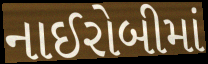
નાઈરોબીમાં